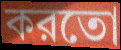
করতো